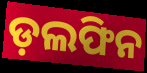
ଡ଼ଲଫିନ